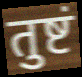
तुष्टं